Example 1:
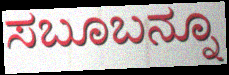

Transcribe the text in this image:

ಸಬೂಬನ್ನೂ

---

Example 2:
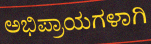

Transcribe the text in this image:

ಅಭಿಪ್ರಾಯಗಳಾಗಿ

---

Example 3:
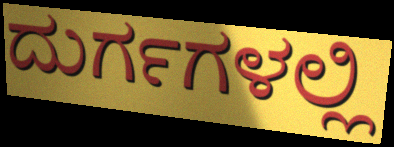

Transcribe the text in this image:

ದುರ್ಗಗಳಲ್ಲಿ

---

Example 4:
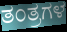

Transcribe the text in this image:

ತಂತ್ರಗಳ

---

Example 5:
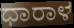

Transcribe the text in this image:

ಧಾರಾಳ